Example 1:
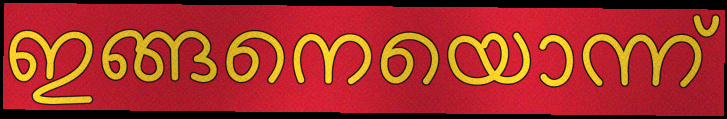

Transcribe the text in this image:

ഇങ്ങനെയൊന്ന്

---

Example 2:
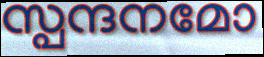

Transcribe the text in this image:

സ്പന്ദനമോ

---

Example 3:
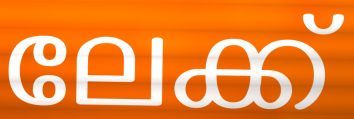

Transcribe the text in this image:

ലേക്ക്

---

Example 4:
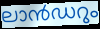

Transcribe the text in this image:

ലാൻഡറും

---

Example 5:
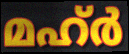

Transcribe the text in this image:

മഹ്ർ